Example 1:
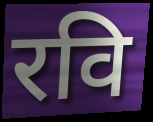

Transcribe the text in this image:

रवि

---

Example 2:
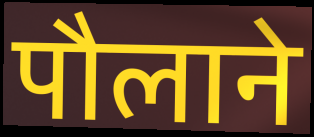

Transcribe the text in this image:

पौलाने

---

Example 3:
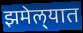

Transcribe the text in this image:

झमेल्यात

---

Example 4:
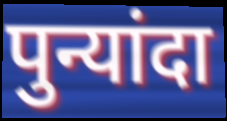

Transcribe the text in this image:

पुन्यांदा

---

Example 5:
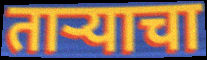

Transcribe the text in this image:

ताऱ्याचा